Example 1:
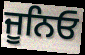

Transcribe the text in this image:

ਜੂਨਿਓ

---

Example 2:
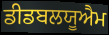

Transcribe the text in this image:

ਡੀਡਬਲਯੂਐਮ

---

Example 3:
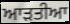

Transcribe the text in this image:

ਆੜਤੀਆ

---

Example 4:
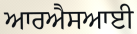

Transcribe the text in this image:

ਆਰਐਸਆਈ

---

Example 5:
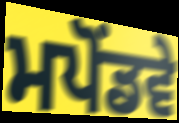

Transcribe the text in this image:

ਮਪੋਂਡਵੇ